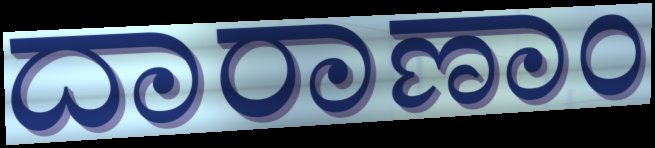
ದಾರಾಣಾಂ